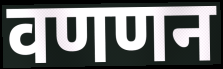
वणणन